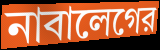
নাবালেগের